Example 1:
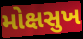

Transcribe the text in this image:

મોક્ષસુખ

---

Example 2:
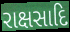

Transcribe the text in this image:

રાક્ષસાદિ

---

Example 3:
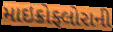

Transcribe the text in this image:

માઇક્રોફ્લોરાની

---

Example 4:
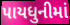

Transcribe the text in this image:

પાયધુનીમાં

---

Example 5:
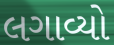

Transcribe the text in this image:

લગાવ્યો